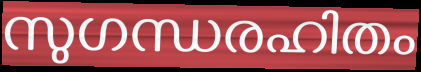
സുഗന്ധരഹിതം